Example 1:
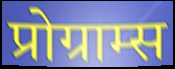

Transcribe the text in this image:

प्रोग्राम्‍स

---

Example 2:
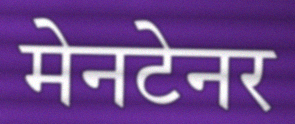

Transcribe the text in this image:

मेनटेनर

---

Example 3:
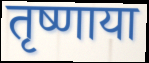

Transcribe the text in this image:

तृष्णाया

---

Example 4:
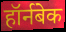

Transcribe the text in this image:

हॉर्नबेक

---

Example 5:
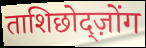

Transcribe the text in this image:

ताशिछोद्ज़ोंग